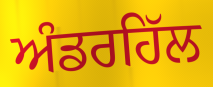
ਅੰਡਰਹਿੱਲ